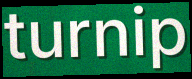
turnip